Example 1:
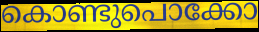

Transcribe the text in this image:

കൊണ്ടുപൊക്കോ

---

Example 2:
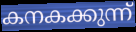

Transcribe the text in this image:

കനകക്കുന്ന്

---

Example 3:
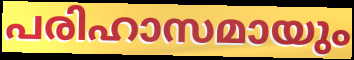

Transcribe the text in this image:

പരിഹാസമായും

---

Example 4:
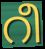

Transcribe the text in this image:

റീ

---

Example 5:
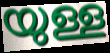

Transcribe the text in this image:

യുള്ള